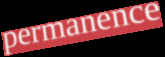
permanence